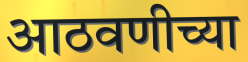
आठवणीच्या